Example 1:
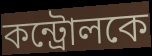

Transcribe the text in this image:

কন্ট্রোলকে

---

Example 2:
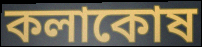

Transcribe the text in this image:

কলাকোষ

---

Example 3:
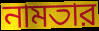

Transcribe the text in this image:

নামতার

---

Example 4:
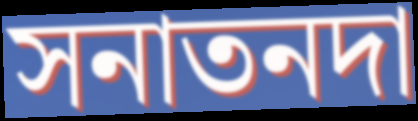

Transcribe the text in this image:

সনাতনদা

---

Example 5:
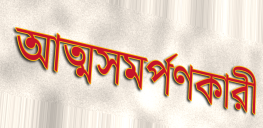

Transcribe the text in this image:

আত্মসমর্পণকারী